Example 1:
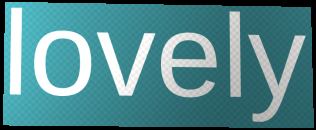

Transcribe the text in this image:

lovely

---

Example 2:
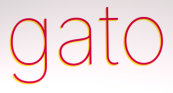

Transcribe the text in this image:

gato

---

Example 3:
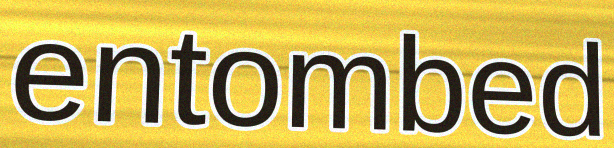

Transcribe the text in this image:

entombed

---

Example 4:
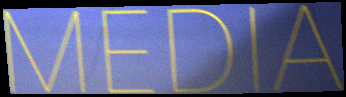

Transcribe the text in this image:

MEDIA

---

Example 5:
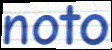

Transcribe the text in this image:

noto